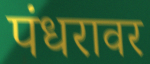
पंधरावर